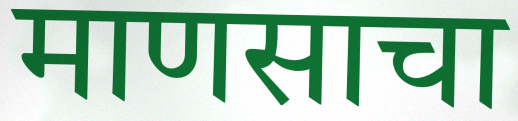
माणसाचा